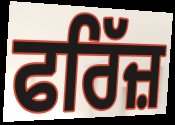
ਫਰਿੱਜ਼